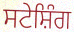
ਸਟੇਸ਼ਿੰਗ